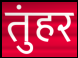
तुंहर